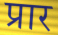
प्रार